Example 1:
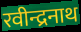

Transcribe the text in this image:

रवीन्‍द्रनाथ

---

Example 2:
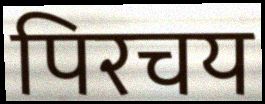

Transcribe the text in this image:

पिरचय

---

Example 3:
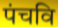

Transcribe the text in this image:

पंचवि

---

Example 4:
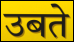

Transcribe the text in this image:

उबते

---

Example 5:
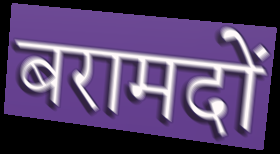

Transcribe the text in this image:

बरामदों